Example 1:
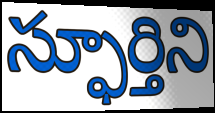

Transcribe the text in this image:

స్ఫూర్తిని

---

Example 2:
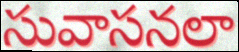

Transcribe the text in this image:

సువాసనలా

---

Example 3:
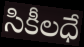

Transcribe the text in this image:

సికీలధే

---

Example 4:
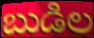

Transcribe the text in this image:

బుడిల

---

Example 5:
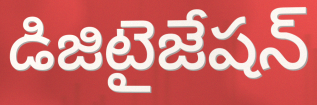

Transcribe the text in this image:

డిజిటైజేషన్